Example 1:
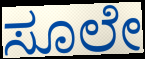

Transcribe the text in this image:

ಸೂಲೇ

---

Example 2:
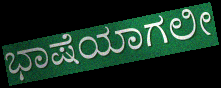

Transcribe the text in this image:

ಭಾಷೆಯಾಗಲೀ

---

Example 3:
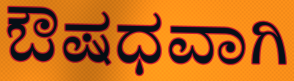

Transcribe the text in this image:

ಔಷಧವಾಗಿ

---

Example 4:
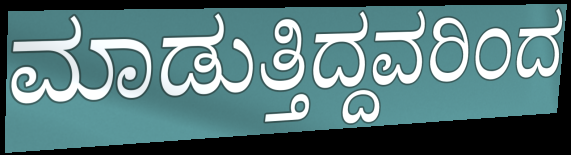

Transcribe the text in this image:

ಮಾಡುತ್ತಿದ್ದವರಿಂದ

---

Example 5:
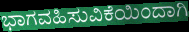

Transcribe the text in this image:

ಭಾಗವಹಿಸುವಿಕೆಯಿಂದಾಗಿ